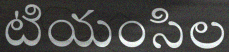
టియంసిల